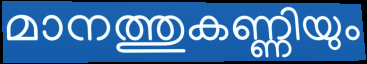
മാനത്തുകണ്ണിയും